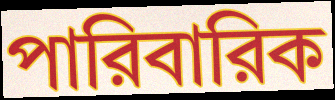
পারিবারিক